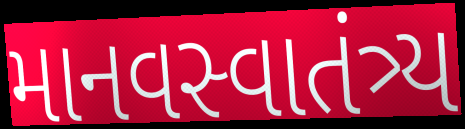
માનવસ્વાતંત્ર્ય